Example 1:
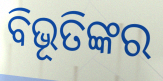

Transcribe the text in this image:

ବିଭୂତିଙ୍କର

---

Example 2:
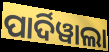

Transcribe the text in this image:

ପାର୍ଦିୱାଲା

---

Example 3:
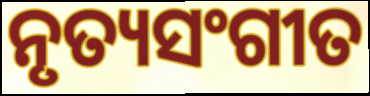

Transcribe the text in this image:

ନୃତ୍ୟସଂଗୀତ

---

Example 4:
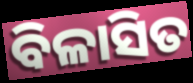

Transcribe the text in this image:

ବିଳାସିତ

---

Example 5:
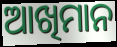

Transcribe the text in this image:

ଆଖିମାନ